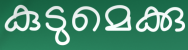
കുടുമെക്കു